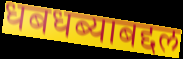
धबधब्याबद्दल